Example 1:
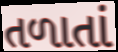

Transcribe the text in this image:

તળાતાં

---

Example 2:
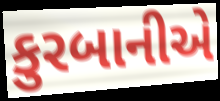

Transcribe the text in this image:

કુરબાનીએ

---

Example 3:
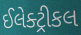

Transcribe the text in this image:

ઈલેક્ટ્રીકલ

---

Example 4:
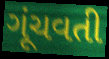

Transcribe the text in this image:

ગૂંચવતી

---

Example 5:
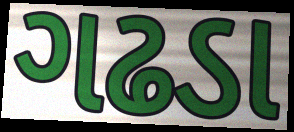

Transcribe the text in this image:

ગઢડા